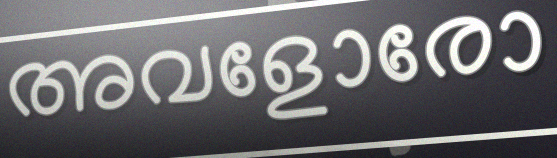
അവളോരോ